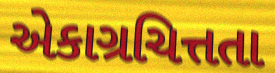
એકાગ્રચિત્તતા